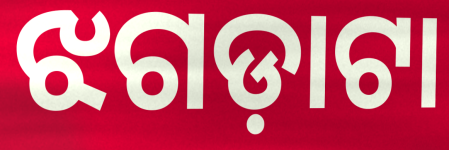
ଝଗଡ଼ାଟା